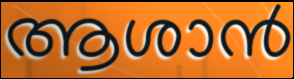
ആശാൻ